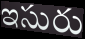
ఇసురు